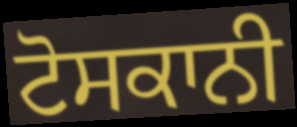
ਟੋਸਕਾਨੀ